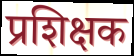
प्रशिक्षक